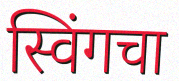
स्विंगचा